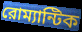
রোম্যান্টিক